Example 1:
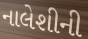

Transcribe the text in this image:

નાલેશીની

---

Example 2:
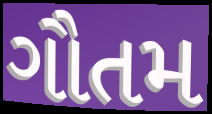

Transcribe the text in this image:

ગૌતમ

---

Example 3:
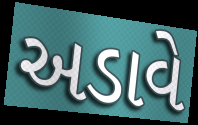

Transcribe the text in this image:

અડાવે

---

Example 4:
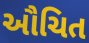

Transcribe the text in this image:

ઔચિત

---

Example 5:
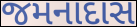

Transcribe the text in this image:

જમનાદાસ